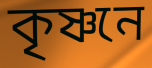
কৃষ্ণনে